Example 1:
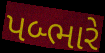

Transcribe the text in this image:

પબ્ભારે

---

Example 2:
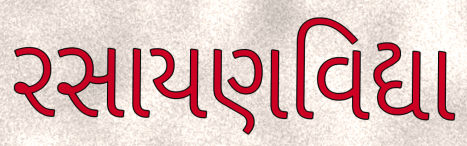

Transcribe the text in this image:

રસાયણવિદ્યા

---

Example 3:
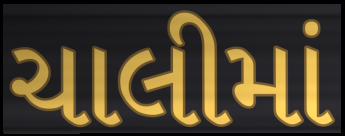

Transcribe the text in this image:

ચાલીમાં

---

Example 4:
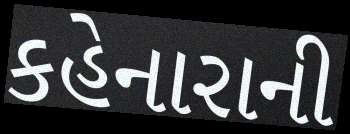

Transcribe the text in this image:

કહેનારાની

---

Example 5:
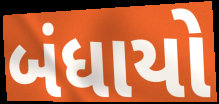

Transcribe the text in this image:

બંધાયો